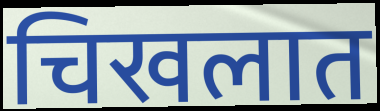
चिखलात